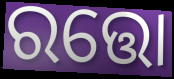
ରତ୍ତୋ